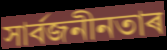
সাৰ্বজনীনতাৰ